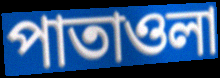
পাতাওলা